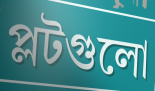
প্লটগুলো